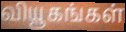
வியூகங்கள்